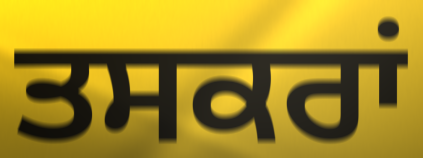
ਤਸਕਰਾਂ